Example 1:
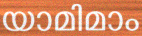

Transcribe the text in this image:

യാമിമാം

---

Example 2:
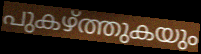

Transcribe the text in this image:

പുകഴ്ത്തുകയും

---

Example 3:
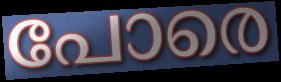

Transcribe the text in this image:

പോരെ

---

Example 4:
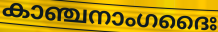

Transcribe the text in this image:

കാഞ്ചനാംഗദൈഃ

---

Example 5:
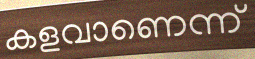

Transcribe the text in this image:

കളവാണെന്ന്